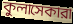
কুলাসেকারা